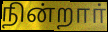
நின்றார்